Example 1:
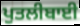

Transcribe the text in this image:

ਪੁਤਲੀਬਾਈ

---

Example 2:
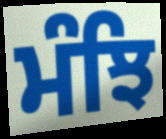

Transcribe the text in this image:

ਮੰਝਿ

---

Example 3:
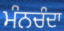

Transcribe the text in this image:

ਮੰਨਚੰਦਾ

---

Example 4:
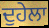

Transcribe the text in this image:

ਦੁਹੇਲਾ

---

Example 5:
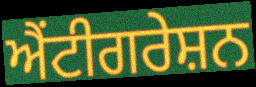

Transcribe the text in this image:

ਐਂਟੀਗਰੇਸ਼ਨ